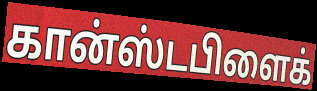
கான்ஸ்டபிளைக்